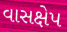
વાસક્ષેપ